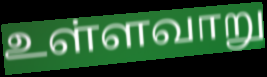
உள்ளவாறு